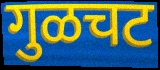
गुळचट